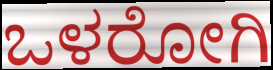
ಒಳರೋಗಿ